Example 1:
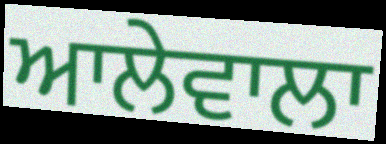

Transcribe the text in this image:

ਆਲੇਵਾਲਾ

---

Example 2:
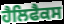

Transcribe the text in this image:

ਹੈਲਿਫੈਕਸ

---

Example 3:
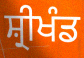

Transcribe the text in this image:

ਸ਼੍ਰੀਖੰਡ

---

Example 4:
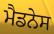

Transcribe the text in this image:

ਮੈਡਨੇਸ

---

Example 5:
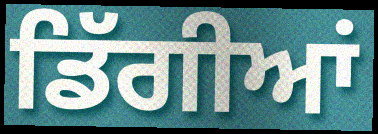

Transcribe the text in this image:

ਡਿੱਗੀਆਂ